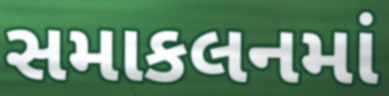
સમાકલનમાં